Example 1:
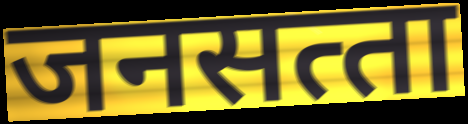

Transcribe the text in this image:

जनसत्‍ता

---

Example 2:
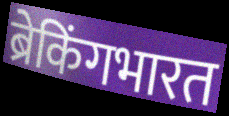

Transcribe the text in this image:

ब्रेकिंगभारत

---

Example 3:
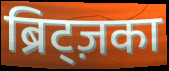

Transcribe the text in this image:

ब्रिट्ज़का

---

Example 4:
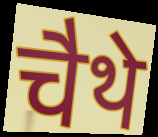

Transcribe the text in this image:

चैथे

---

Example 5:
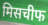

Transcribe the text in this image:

मिसचीफ